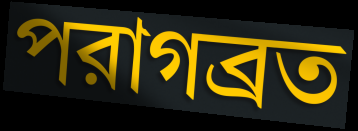
পরাগব্রত